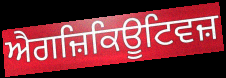
ਐਗਜ਼ਿਕਿਊਟਿਵਜ਼